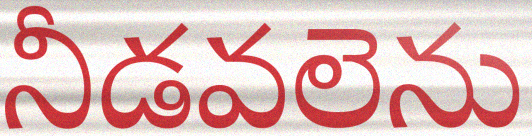
నీడవలెను